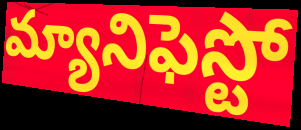
మ్యానిఫెస్టో